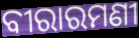
ବୀରାରମଣୀ